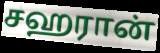
சஹரான்